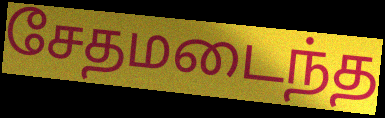
சேதமடைந்த